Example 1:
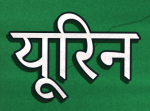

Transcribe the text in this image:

यूरिन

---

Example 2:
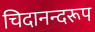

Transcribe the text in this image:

चिदानन्दरूप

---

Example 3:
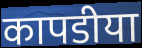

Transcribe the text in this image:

कापडीया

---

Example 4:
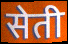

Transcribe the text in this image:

सेती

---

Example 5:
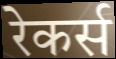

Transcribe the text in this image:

रेकर्स